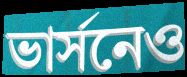
ভার্সনেও